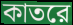
কাতরে